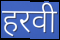
हरवी